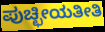
ಪುಚ್ಛೀಯತೀತಿ